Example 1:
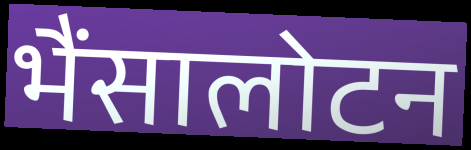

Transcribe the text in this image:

भैंसालोटन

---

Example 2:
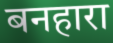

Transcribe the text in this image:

बनहारा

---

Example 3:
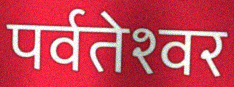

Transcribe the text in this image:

पर्वतेश्वर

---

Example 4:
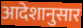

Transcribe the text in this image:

आदेशानुसार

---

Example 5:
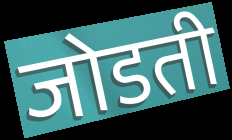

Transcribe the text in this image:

जोडती